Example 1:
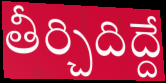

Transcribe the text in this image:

తీర్చిదిద్దే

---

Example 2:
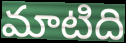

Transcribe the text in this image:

మాటిది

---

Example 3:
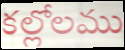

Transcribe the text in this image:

కల్లోలము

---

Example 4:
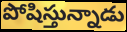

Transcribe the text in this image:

పోషిస్తున్నాడు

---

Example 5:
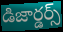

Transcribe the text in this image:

డిజార్డర్స్